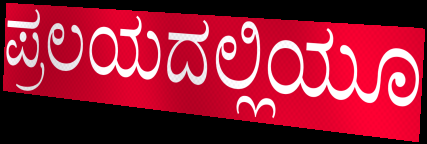
ಪ್ರಲಯದಲ್ಲಿಯೂ